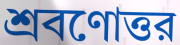
শ্রবণোত্তর